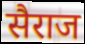
सैराज